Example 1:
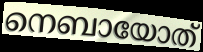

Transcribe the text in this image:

നെബായോത്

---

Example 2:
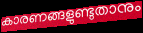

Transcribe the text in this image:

കാരണങ്ങളുണ്ടുതാനും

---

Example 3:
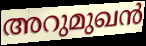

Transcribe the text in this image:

അറുമുഖൻ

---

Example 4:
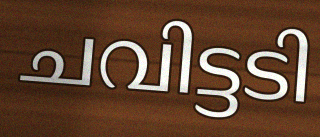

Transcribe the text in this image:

ചവിട്ടടി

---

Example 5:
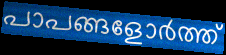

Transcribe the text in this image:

പാപങ്ങളോർത്ത്